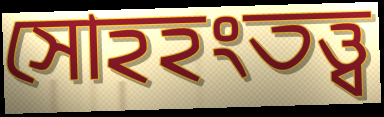
সোহহংতত্ত্ব